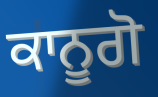
ਕਾਨੂਗੋ